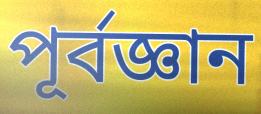
পূর্বজ্ঞান